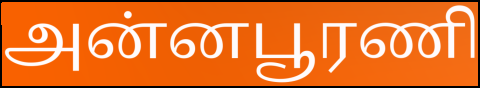
அன்னபூரணி